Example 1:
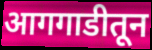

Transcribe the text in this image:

आगगाडीतून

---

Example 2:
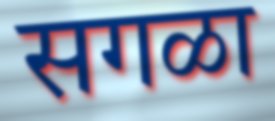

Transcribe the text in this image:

सगळा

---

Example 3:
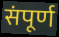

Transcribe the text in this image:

संपूर्ण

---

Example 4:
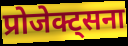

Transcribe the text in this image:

प्रोजेक्ट्सना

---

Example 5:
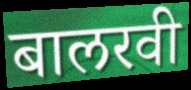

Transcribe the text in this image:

बालरवी